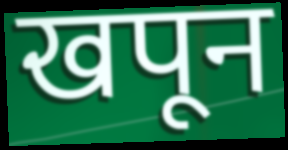
खपून